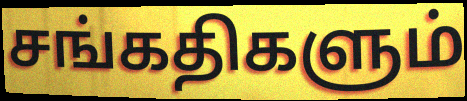
சங்கதிகளும்